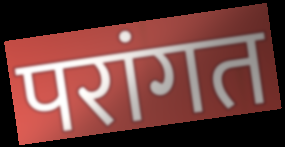
परांगत